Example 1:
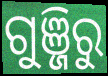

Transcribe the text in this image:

ଗୁଞ୍ଜିରୁ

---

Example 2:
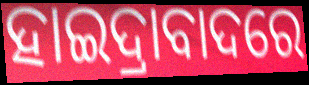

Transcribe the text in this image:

ହାଇଦ୍ରାବାଦରେ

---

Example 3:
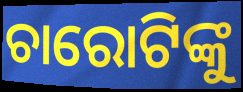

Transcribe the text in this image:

ଚାରୋଟିଙ୍କୁ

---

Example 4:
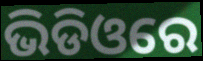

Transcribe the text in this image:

ଭିଡିଓରେ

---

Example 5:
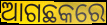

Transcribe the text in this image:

ଆଗଛକରେ